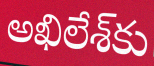
అఖిలేశ్‌కు